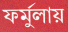
ফর্মুলায়